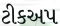
ટીકઅપ